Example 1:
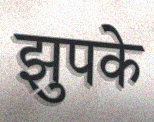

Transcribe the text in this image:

झुपके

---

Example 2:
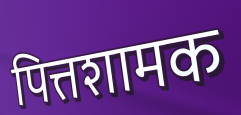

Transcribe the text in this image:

पित्तशामक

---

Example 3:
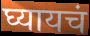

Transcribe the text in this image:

घ्यायचं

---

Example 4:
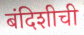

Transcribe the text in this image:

बंदिशीची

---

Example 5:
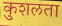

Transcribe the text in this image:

कुशलता